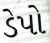
ડેપો